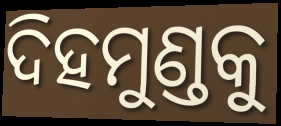
ଦିହମୁଣ୍ଡକୁ